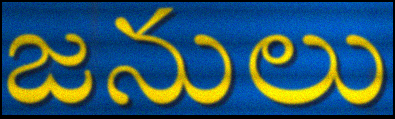
జనులు